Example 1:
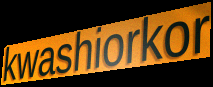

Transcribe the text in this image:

kwashiorkor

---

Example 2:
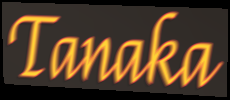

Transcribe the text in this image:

Tanaka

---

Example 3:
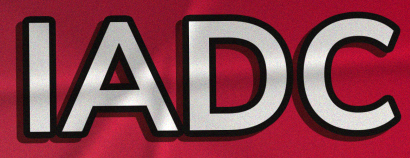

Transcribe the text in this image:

IADC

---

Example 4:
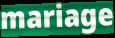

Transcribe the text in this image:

mariage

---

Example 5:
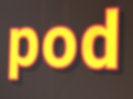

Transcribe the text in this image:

pod